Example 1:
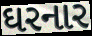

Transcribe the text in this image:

ઘરનાર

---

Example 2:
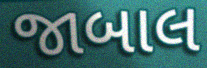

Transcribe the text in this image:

જાબાલ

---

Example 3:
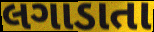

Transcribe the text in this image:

લગાડાતા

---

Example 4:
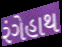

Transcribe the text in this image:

રંગેહાથ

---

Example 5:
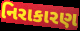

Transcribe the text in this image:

નિરાકારણ